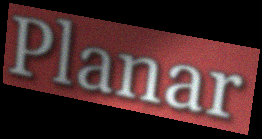
Planar